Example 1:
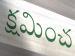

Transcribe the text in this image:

క్షమించ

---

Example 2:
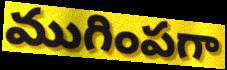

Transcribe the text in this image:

ముగింపగా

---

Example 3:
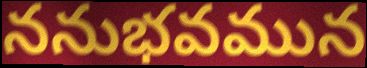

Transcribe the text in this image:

ననుభవమున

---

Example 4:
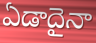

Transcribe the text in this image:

ఏడాదైనా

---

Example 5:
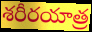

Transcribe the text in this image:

శరీరయాత్ర